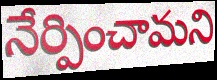
నేర్పించామని